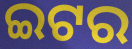
ଇଟର